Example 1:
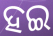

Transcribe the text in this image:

ହଇ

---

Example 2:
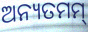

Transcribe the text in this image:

ଅନ୍ୟତମମ୍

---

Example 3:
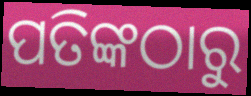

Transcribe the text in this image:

ପତିଙ୍କଠାରୁ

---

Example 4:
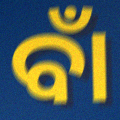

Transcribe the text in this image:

ବାଁ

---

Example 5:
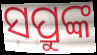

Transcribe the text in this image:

ସପ୍ରୁଙ୍କ